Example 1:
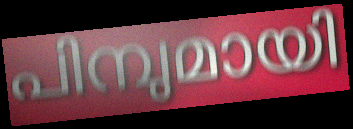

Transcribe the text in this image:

പിമ്പുമായി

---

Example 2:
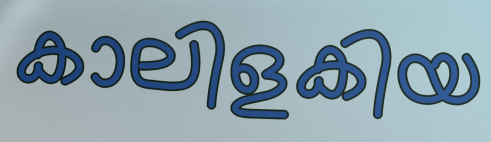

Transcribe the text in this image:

കാലിളകിയ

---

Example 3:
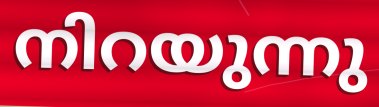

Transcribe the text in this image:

നിറയുന്നു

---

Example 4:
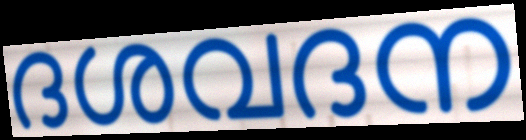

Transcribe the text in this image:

ദശവദന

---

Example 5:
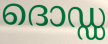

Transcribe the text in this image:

ദൊഡ്ഡ